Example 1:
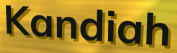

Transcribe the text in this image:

Kandiah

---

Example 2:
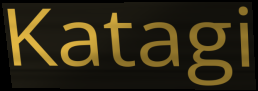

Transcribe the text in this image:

Katagi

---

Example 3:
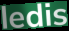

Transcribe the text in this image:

ledis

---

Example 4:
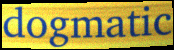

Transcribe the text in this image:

dogmatic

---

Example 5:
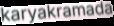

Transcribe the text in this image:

karyakramada